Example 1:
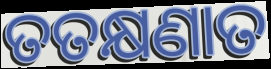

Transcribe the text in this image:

ତତକ୍ଷଣାତ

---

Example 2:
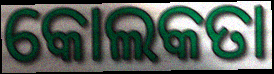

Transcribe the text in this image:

କୋଲକତା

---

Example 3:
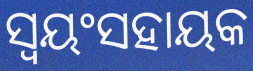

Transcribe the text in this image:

ସ୍ଵୟଂସହାୟକ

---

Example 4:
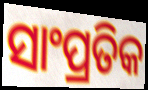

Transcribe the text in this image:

ସାଂପ୍ରତିକ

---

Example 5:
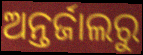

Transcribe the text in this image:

ଅନ୍ତର୍ଜାଲରୁ